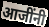
आजींनी